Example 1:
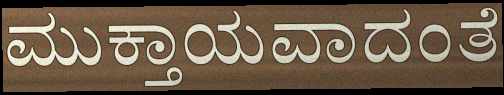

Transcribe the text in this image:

ಮುಕ್ತಾಯವಾದಂತೆ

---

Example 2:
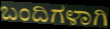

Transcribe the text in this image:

ಬಂದಿಗಳಾಗಿ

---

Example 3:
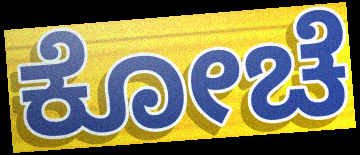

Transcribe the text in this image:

ಕೋಚೆ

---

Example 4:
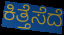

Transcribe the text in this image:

ಕಿತ್ತೆಸೆದೆ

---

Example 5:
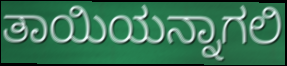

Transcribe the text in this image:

ತಾಯಿಯನ್ನಾಗಲಿ